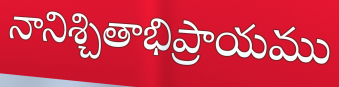
నానిశ్చితాభిప్రాయము